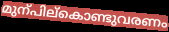
മുന്പില്കൊണ്ടുവരണം